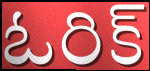
ఓరిక్